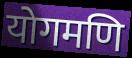
योगमणि